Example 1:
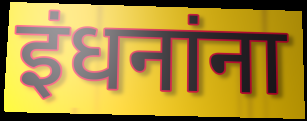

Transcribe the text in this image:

इंधनांना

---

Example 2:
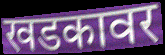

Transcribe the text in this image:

खडकावर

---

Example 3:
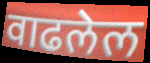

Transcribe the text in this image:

वाढलेल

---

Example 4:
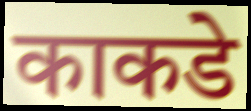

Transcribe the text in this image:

काकडे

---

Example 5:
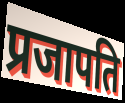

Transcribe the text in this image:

प्रजापति